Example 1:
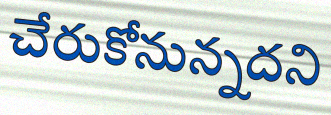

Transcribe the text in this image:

చేరుకోనున్నదని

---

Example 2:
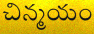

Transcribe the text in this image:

చిన్మయం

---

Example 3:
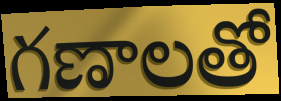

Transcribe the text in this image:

గణాలతో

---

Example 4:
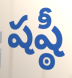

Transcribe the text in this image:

షష్ఠీ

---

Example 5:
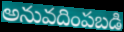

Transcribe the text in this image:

అనువదింపబడి